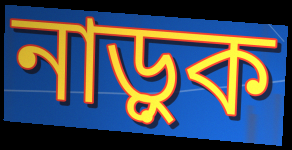
নাড়ুক